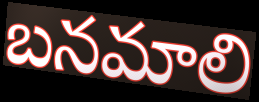
బనమాలి